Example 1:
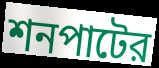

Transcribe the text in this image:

শনপাটের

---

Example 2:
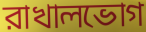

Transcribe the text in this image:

রাখালভোগ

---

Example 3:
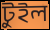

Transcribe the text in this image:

টুইল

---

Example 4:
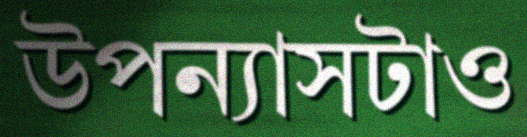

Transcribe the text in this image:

উপন্যাসটাও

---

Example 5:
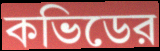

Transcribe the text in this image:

কভিডের